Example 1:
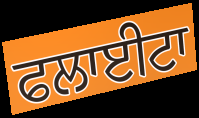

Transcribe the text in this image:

ਫਲਾਈਟਾ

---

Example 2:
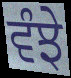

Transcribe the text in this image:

ਵੰਝੇ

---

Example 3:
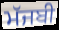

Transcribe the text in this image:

ਮੱਜਬੀ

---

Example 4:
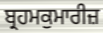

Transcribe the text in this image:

ਬ੍ਰਹਮਕੁਮਾਰੀਜ਼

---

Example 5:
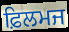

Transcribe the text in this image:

ਫ਼ਿਲਮਜ